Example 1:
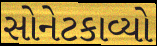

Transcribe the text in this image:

સોનેટકાવ્યો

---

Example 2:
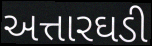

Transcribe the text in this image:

અત્તારઘડી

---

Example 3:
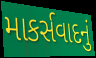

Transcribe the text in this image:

માકર્સવાદનું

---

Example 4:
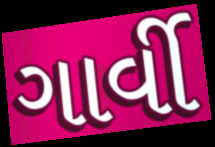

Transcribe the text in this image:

ગાર્વી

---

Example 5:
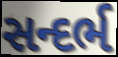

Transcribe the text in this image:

સન્દર્ભ